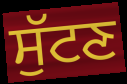
ਸੁੱਟਣ